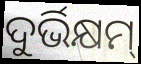
ଦୁର୍ଭିକ୍ଷମ୍